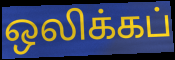
ஒலிக்கப்